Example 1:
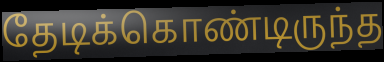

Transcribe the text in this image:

தேடிக்கொண்டிருந்த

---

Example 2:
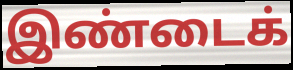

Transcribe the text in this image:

இண்டைக்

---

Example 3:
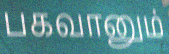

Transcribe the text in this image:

பகவானும்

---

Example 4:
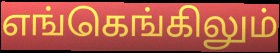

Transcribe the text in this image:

எங்கெங்கிலும்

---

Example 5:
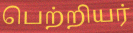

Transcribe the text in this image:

பெற்றியர்